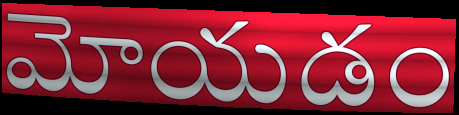
మోయడం